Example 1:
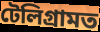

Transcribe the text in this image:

টেলিগ্ৰামত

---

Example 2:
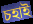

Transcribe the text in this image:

চহাই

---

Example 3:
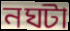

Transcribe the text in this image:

নঘটা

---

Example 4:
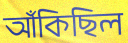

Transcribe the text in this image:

আঁকিছিল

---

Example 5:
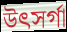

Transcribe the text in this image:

উৎসৰ্গা